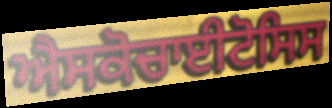
ਐਸਕੋਚਾਈਟੋਸਿਸ